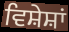
ਵਿਸ਼ੇਸ਼ਾਂ